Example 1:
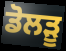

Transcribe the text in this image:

ਡੋਲੜੂ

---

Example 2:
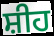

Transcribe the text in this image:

ਸ਼ੀਹ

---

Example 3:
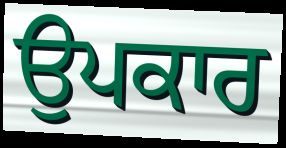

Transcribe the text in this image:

ਉਪਕਾਰ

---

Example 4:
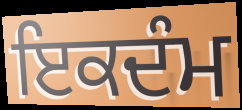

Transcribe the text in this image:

ਇਕਦੰਮ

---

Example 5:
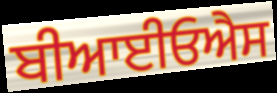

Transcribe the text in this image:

ਬੀਆਈਓਐਸ